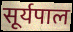
सूर्यपाल